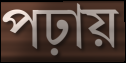
পঢ়ায়